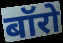
बॉरो